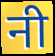
नी